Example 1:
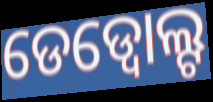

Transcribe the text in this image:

ଡେଡ୍ବୋଲ୍ଟ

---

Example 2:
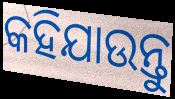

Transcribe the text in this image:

କହିଯାଉନ୍ତୁ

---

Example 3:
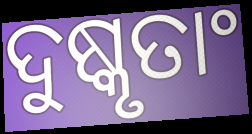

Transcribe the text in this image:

ଦୁଷ୍କୃତାଂ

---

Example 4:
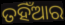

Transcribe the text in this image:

ତହିଁଆର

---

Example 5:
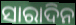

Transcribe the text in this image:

ସାରାଦିନ